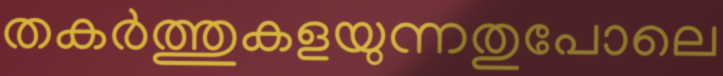
തകർത്തുകളയുന്നതുപോലെ